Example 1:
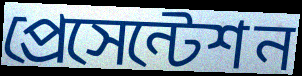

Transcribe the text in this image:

প্রেসেন্টেশন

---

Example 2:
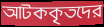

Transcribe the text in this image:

আটককৃতদের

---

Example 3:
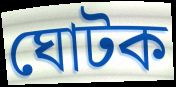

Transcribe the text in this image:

ঘোটক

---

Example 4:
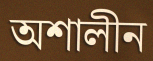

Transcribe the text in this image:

অশালীন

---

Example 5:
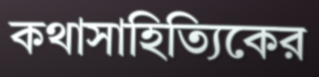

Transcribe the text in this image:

কথাসাহিত্যিকের